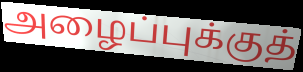
அழைப்புக்குத்